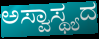
ಅಸ್ವಾಸ್ಥ್ಯದ